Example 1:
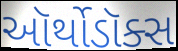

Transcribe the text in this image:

ઑર્થોડૉક્સ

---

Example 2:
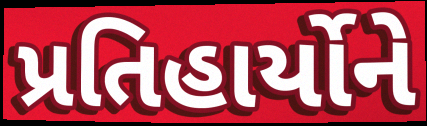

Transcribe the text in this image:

પ્રતિહાર્યોને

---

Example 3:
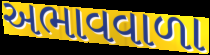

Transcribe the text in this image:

અભાવવાળા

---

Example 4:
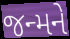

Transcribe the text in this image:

જન્મને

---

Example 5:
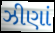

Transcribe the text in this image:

ઝીણાં